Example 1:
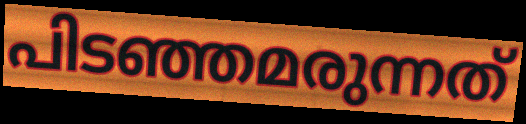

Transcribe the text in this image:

പിടഞ്ഞമരുന്നത്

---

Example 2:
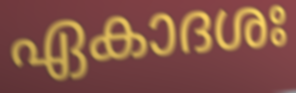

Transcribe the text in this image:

ഏകാദശഃ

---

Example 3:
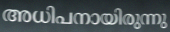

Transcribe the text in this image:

അധിപനായിരുന്നു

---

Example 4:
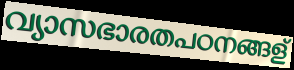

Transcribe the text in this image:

വ്യാസഭാരതപഠനങ്ങള്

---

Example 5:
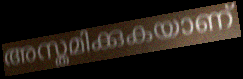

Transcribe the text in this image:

അസ്തമിക്കുകയാണ്